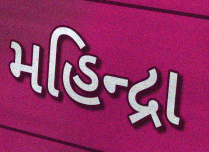
મહિન્દ્રા